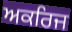
ਅਕਰਿਜ